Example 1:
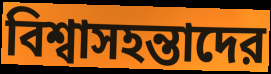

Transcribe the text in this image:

বিশ্বাসহন্তাদের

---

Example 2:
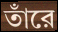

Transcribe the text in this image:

তাঁরে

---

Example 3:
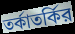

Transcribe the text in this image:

তর্কাতর্কির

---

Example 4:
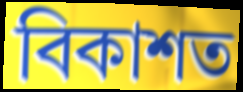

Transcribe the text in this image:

বিকাশত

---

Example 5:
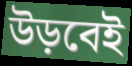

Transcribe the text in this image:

উড়বেই